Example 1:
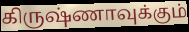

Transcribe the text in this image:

கிருஷ்ணாவுக்கும்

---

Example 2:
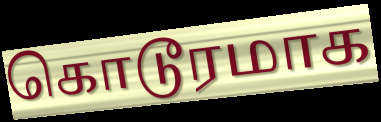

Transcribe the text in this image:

கொடூரமாக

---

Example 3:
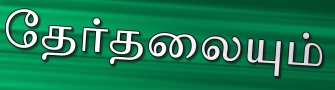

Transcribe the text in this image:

தேர்தலையும்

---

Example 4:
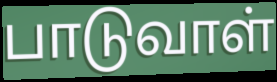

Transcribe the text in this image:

பாடுவாள்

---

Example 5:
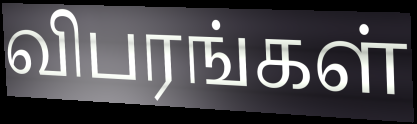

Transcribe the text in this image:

விபரங்கள்